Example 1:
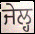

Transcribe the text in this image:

ਜੇਲ੍ਹ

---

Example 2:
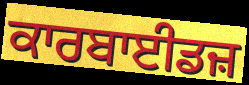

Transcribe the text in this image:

ਕਾਰਬਾਈਡਜ਼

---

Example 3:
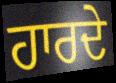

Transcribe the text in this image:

ਹਾਰਦੇ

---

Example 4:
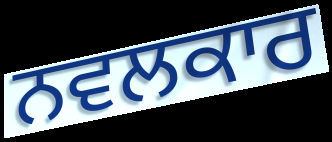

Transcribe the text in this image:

ਨਵਲਕਾਰ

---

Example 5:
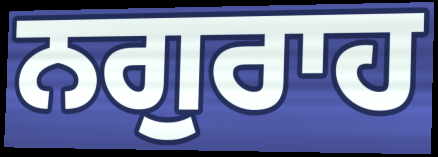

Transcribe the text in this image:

ਨਗੁਰਾਹ